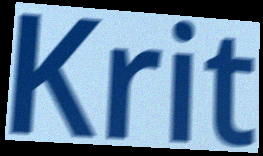
Krit